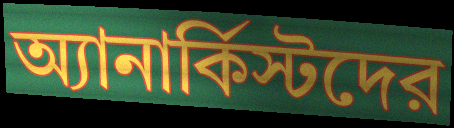
অ্যানার্কিস্টদের